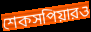
শেকসপিয়ারও